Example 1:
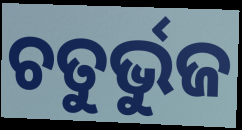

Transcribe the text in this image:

ଚତୁର୍ଭୁଜ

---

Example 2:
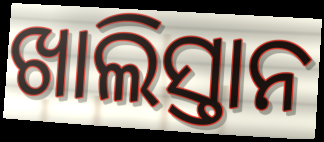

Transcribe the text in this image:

ଖାଲିସ୍ତାନ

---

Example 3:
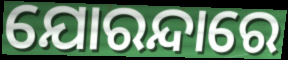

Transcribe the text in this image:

ଯୋରନ୍ଦାରେ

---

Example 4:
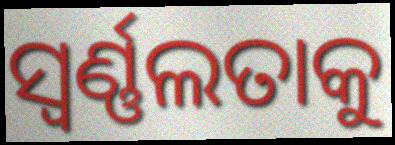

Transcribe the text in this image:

ସ୍ଵର୍ଣ୍ଣଲତାକୁ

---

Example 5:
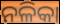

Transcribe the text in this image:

ନଳିକା